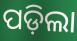
ପଡ଼ିଲା